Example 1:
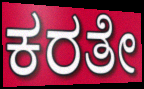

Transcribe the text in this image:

ಕರತೇ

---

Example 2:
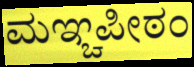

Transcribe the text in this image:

ಮಞ್ಚಪೀಠಂ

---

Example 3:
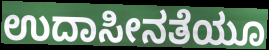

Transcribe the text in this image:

ಉದಾಸೀನತೆಯೂ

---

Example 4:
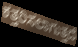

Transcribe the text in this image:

ಕತ್ತರಿಸಲಾಗುತ್ತದೆ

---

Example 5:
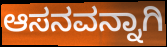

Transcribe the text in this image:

ಆಸನವನ್ನಾಗಿ